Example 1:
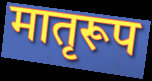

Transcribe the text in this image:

मातृरूप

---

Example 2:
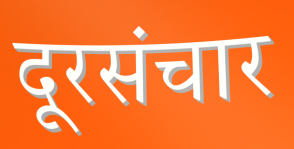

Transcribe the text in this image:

दूरसंचार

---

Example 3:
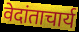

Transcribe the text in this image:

वेदांताचार्य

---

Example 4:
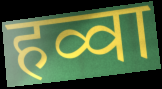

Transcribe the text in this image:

हव्वा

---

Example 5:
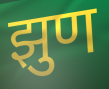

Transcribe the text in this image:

झुण